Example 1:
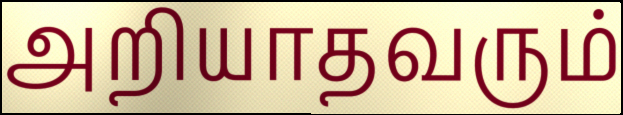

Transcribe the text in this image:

அறியாதவரும்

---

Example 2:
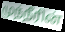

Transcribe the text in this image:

முந்நீரின்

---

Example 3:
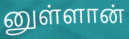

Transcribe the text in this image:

னுள்ளான்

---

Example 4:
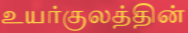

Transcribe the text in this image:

உயர்குலத்தின்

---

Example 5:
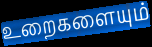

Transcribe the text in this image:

உறைகளையும்